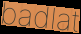
badlat